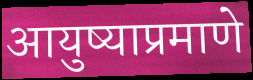
आयुष्याप्रमाणे